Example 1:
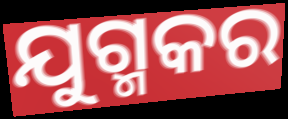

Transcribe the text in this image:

ଯୁଗ୍ମକର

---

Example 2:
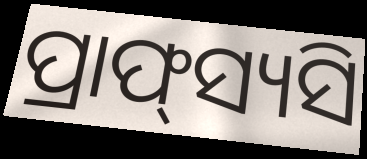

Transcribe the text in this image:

ପ୍ରାଫ୍‌ସ୍ୟସି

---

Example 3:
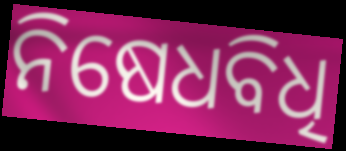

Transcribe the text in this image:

ନିଷେଧବିଧି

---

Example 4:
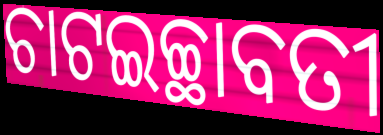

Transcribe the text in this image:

ଚାଟଇଚ୍ଛାବତୀ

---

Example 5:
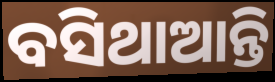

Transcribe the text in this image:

ବସିଥାଆନ୍ତି